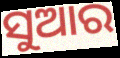
ସୁଆର